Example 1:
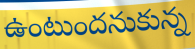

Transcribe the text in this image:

ఉంటుందనుకున్న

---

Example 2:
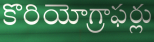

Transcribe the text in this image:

కొరియోగ్రాఫర్లు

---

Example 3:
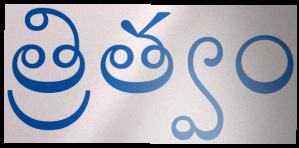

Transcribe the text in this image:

త్రిత్వం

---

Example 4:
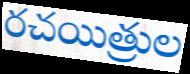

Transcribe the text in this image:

రచయిత్రుల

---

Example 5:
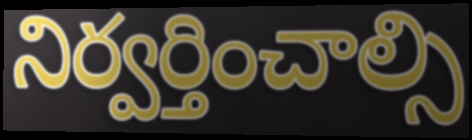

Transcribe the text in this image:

నిర్వర్తించాల్సి